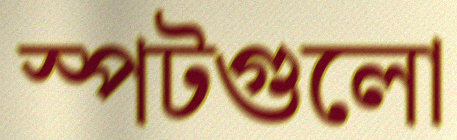
স্পটগুলো